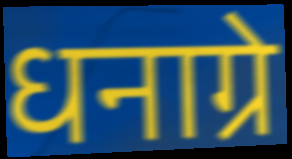
धनाग्रे